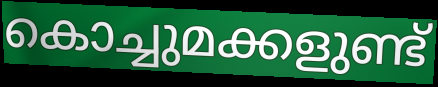
കൊച്ചുമക്കളുണ്ട്